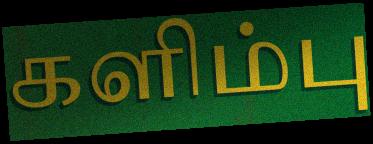
களிம்பு